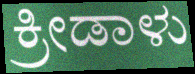
ಕ್ರೀಡಾಳು